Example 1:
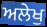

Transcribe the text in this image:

ਅਲੇਖੁ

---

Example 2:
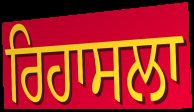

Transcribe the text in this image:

ਰਿਹਾਸਲਾ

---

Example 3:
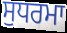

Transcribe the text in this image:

ਸੁਧਰਮਾ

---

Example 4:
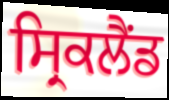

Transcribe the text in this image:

ਸ੍ਰਿਕਲੈਂਡ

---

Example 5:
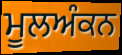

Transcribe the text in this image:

ਮੂਲਅੰਕਨ